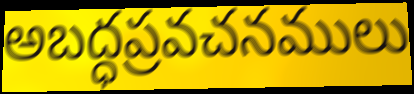
అబద్ధప్రవచనములు